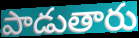
పాడుతారు